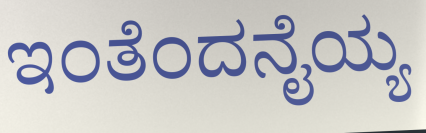
ಇಂತೆಂದನೈಯ್ಯ